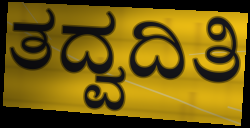
ತದ್ವದಿತಿ